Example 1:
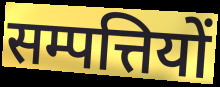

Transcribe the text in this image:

सम्पत्तियों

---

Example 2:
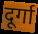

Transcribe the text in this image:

दूर्गा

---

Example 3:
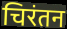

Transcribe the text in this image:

चिरंतन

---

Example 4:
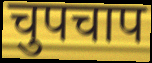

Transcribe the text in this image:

चुपचाप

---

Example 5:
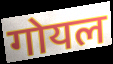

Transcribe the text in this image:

गोयल